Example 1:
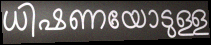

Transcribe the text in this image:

ധിഷണയോടുള്ള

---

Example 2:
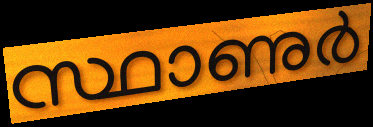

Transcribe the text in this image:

സ്ഥാണുർ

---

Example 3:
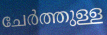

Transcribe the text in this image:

ചേർത്തുള്ള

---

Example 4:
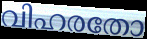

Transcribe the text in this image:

വിഹരതോ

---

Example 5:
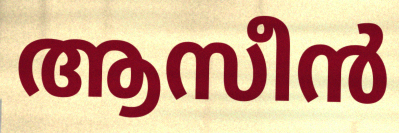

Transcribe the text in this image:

ആസീൻ